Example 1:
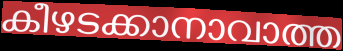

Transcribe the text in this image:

കീഴടക്കാനാവാത്ത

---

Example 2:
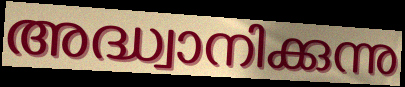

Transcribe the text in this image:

അദ്ധ്വാനിക്കുന്നു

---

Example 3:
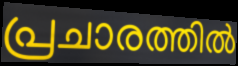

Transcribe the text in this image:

പ്രചാരത്തിൽ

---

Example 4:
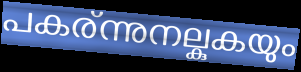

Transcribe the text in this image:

പകര്ന്നുനല്കുകയും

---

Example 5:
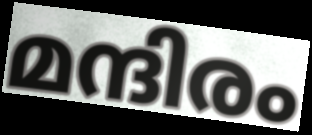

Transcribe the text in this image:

മന്ദിരം